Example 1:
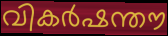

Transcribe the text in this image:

വികർഷന്തൗ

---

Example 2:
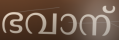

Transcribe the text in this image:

ഭവാന്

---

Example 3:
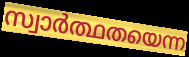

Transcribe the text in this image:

സ്വാർത്ഥതയെന്ന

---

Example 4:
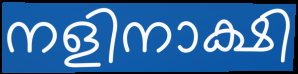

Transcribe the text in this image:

നളിനാക്ഷി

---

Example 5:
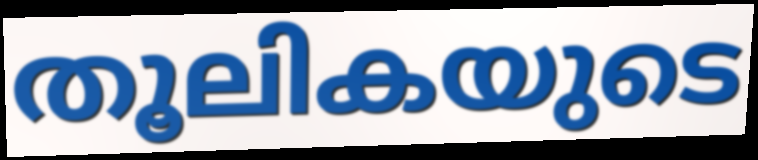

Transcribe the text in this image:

തൂലികയുടെ